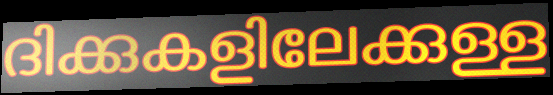
ദിക്കുകളിലേക്കുള്ള